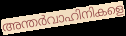
അന്തർവാഹിനികളെ